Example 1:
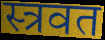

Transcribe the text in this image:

स्त्रवत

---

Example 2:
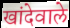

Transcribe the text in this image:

खांदेवाले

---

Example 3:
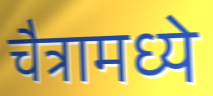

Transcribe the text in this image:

चैत्रामध्ये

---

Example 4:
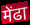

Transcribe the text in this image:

मेंढा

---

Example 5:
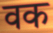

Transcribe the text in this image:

वक